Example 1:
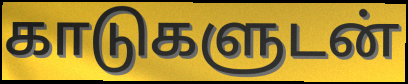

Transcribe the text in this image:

காடுகளுடன்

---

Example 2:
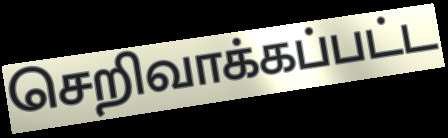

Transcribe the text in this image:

செறிவாக்கப்பட்ட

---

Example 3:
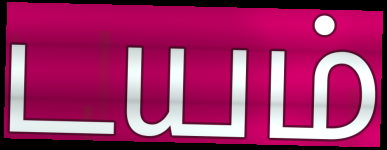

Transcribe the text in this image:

டயம்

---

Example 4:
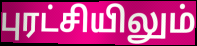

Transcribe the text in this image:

புரட்சியிலும்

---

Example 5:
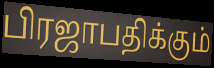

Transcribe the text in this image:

பிரஜாபதிக்கும்